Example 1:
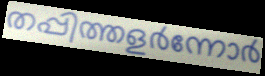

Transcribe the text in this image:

തപ്പിത്തളർന്നോർ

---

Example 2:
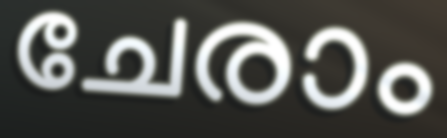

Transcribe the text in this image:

ചേരാം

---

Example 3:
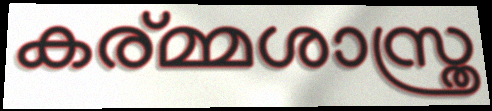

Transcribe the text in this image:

കര്മ്മശാസ്ത്ര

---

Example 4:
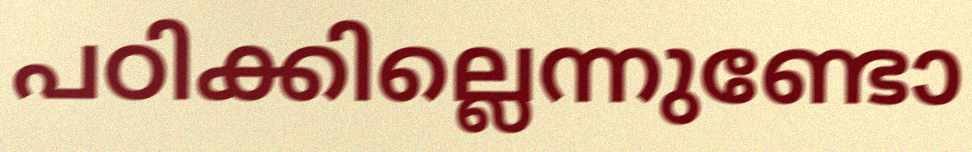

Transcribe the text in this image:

പഠിക്കില്ലെന്നുണ്ടോ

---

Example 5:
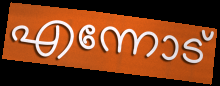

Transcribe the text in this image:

എന്നോട്